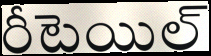
రీటెయిల్